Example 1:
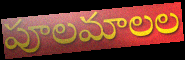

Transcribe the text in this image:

పూలమాలల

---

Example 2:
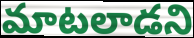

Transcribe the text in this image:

మాటలాడని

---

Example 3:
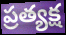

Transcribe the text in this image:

ప్రత్యక్ష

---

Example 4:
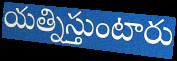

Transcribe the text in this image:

యత్నిస్తుంటారు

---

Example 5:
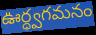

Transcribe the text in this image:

ఊర్ధ్వగమనం